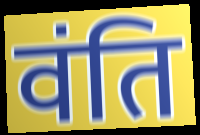
वंति